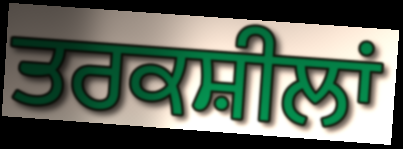
ਤਰਕਸ਼ੀਲਾਂ